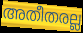
അതീതരല്ല